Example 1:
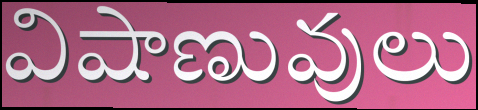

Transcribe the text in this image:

విషాణువులు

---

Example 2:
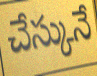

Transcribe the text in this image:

చేస్కునే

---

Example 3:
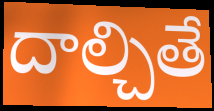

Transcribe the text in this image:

దాల్చితే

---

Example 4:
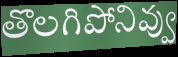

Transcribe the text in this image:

తొలగిపోనివ్వు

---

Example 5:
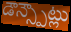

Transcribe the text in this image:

డౌన్స్పౌట్లు